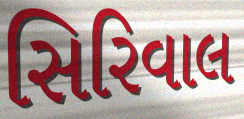
સિરિવાલ